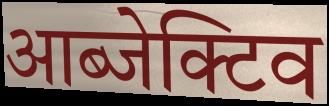
आब्जेक्टिव